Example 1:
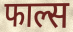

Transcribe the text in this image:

फाल्स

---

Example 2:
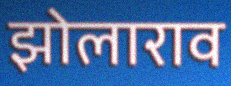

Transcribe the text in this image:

झोलाराव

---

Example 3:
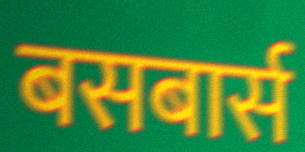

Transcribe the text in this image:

बसबार्स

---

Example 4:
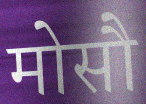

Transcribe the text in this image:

मोसौ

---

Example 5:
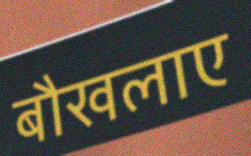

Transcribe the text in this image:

बौखलाए